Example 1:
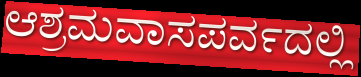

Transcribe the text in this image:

ಆಶ್ರಮವಾಸಪರ್ವದಲ್ಲಿ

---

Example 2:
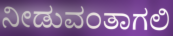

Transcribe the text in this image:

ನೀಡುವಂತಾಗಲಿ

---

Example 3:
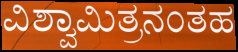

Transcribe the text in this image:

ವಿಶ್ವಾಮಿತ್ರನಂತಹ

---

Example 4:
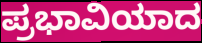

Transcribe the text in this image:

ಪ್ರಭಾವಿಯಾದ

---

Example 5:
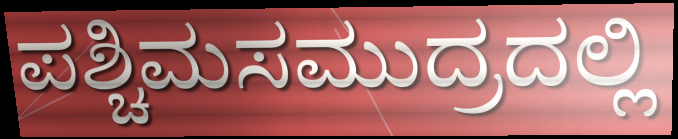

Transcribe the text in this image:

ಪಶ್ಚಿಮಸಮುದ್ರದಲ್ಲಿ